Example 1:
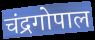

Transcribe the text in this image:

चंद्रगोपाल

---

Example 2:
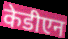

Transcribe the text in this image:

केडीएन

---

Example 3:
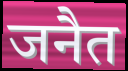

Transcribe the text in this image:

जनैत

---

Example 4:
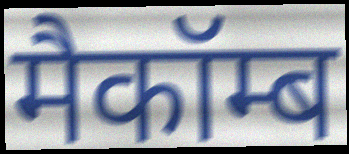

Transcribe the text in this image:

मैकॉम्ब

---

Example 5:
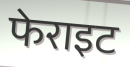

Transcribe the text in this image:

फेराइट